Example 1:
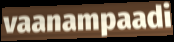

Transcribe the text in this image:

vaanampaadi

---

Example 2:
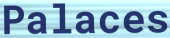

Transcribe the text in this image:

Palaces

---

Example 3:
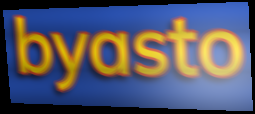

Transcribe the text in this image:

byasto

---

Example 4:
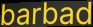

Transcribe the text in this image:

barbad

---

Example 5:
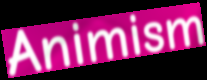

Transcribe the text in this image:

Animism